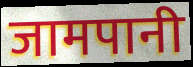
जामपानी